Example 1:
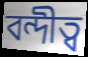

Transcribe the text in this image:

বন্দীত্ব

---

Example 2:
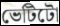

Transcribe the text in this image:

ভেটিটো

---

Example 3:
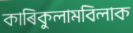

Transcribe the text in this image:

কাৰিকুলামবিলাক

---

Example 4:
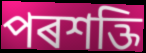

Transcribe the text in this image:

পৰশক্তি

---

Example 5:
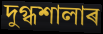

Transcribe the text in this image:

দুগ্ধশালাৰ